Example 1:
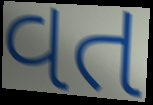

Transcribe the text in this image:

વત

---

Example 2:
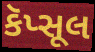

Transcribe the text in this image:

કૅપ્સૂલ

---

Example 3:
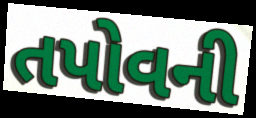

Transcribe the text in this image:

તપોવની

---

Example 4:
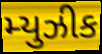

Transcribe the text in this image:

મ્યુઝીક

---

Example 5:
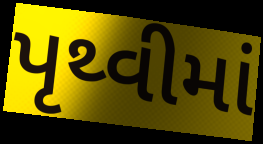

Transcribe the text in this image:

પૃથ્વીમાં